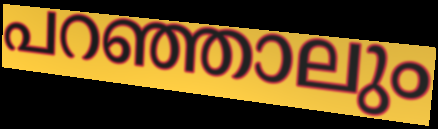
പറഞ്ഞാലും